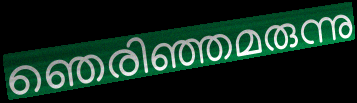
ഞെരിഞ്ഞമരുന്നു